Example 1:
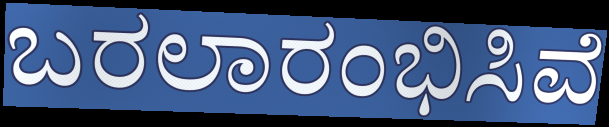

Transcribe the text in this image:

ಬರಲಾರಂಭಿಸಿವೆ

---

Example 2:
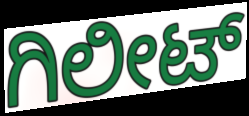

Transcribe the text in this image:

ಗಿಲೀಟ್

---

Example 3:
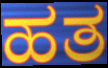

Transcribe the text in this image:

ಹತ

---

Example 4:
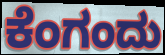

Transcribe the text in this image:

ಕೆಂಗಂದು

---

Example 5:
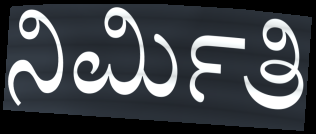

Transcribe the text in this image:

ನಿರ್ಮಿತಿ